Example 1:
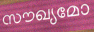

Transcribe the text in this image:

സൗഖ്യമോ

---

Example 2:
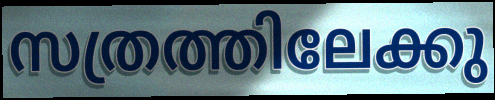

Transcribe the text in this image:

സത്രത്തിലേക്കു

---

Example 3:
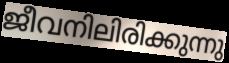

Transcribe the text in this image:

ജീവനിലിരിക്കുന്നു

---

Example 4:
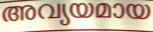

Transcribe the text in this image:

അവ്യയമായ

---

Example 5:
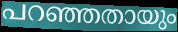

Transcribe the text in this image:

പറഞ്ഞതായും